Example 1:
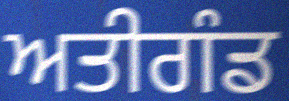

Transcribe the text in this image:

ਅਤੀਗੰਡ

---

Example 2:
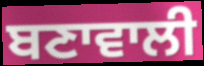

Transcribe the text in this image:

ਬਣਾਵਾਲੀ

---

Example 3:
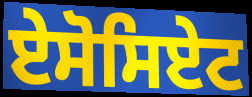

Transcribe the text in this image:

ਏਸੋਸਿਏਟ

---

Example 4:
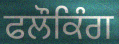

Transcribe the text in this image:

ਫਲੌਕਿੰਗ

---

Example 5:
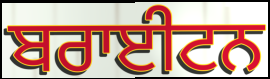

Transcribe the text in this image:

ਬਰਾਈਟਨ